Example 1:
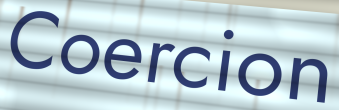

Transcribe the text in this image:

Coercion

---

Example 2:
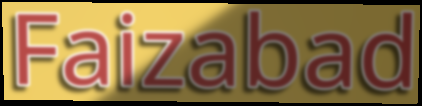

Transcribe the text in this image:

Faizabad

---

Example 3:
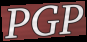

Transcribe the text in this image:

PGP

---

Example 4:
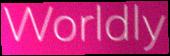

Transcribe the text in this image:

Worldly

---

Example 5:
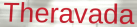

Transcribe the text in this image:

Theravada